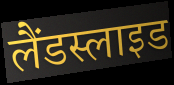
लैंडस्लाइड